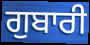
ਗੁਬਾਰੀ